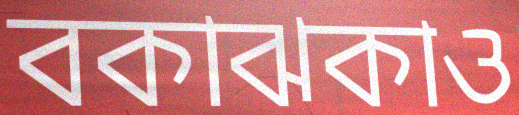
বকাঝকাও